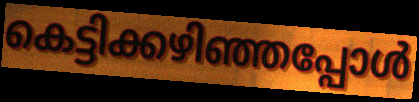
കെട്ടിക്കഴിഞ്ഞപ്പോൾ